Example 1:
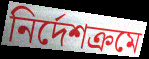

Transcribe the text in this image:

নির্দেশক্রমে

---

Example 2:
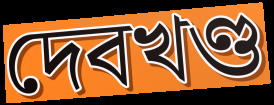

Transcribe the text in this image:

দেবখণ্ড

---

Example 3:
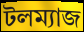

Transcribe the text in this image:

টলম্যাজ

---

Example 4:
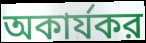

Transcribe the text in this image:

অকার্যকর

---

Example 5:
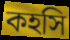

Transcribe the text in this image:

কহসি